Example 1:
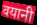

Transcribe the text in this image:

वयानी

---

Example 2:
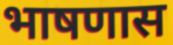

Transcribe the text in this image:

भाषणास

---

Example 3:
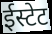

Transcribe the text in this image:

ईस्टेट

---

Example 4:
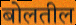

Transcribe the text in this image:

बोलतील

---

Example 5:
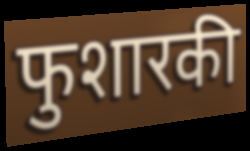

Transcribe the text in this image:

फुशारकी